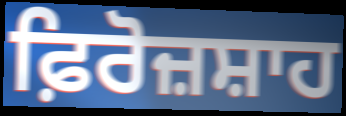
ਫ਼ਿਰੋਜ਼ਸ਼ਾਹ